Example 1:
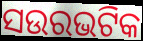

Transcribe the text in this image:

ସଉରଭଟିକ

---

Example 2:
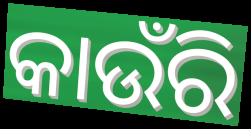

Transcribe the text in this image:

କାଉଁରି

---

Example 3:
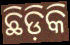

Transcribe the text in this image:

ଛିଡ଼ିକି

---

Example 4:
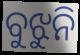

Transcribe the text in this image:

ବୁଝୁନି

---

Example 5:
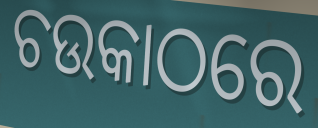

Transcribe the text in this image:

ଚଉକାଠରେ